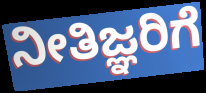
ನೀತಿಜ್ಞರಿಗೆ